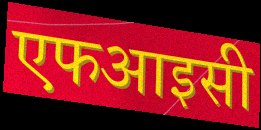
एफआइसी